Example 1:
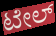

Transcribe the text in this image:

ಟೇಲ್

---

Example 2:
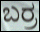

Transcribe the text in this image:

ಬರ್ರ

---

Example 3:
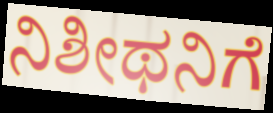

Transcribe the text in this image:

ನಿಶೀಥನಿಗೆ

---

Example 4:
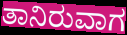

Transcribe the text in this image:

ತಾನಿರುವಾಗ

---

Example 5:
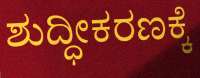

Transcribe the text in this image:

ಶುದ್ಧೀಕರಣಕ್ಕೆ